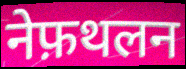
नेफ़थलन